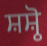
ਸ਼ਸ਼੍ਠੋ